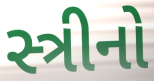
સ્ત્રીનો